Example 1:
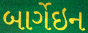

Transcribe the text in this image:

બાર્ગેઇન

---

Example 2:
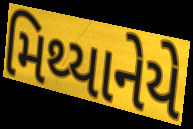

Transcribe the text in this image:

મિથ્યાનેયે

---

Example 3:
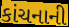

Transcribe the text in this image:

કાંચનાની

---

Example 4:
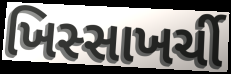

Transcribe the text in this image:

ખિસ્સાખર્ચી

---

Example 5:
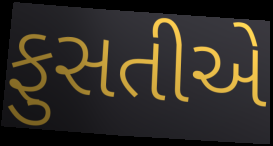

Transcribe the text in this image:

ફુસતીએ